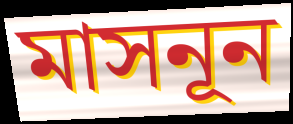
মাসনূন